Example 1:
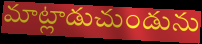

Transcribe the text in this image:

మాట్లాడుచుండును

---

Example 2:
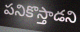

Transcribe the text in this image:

పనికొస్తాడని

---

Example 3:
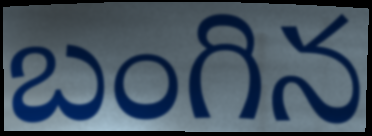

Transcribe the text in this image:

బంగిన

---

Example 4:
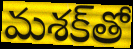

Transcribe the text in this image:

మశక్‌తో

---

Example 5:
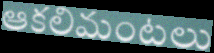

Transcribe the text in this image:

ఆకలిమంటలు